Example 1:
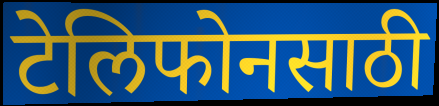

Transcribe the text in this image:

टेलिफोनसाठी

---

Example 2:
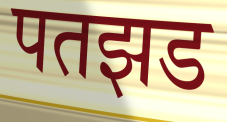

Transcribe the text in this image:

पतझड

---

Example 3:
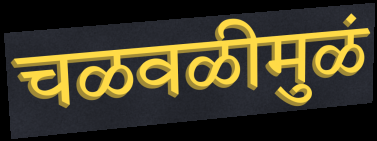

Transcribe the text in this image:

चळवळीमुळं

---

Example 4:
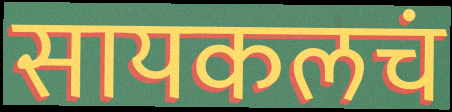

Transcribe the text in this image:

सायकलचं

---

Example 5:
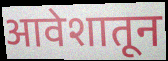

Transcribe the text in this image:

आवेशातून